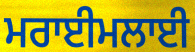
ਮਰਾਈਮਲਾਈ